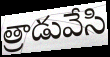
త్రాడువేసి